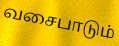
வசைபாடும்